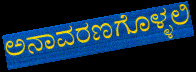
ಅನಾವರಣಗೊಳ್ಳಲಿ